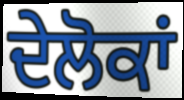
ਦੇਲੋਕਾਂ